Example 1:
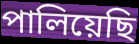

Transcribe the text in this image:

পালিয়েছি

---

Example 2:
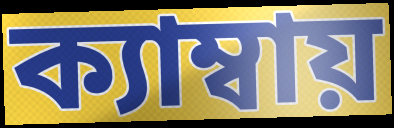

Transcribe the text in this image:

ক্যাম্বায়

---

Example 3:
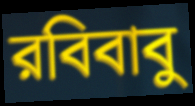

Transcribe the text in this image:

রবিবাবু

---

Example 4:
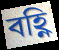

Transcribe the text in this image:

বহ্ণি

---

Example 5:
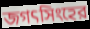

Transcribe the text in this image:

জগৎসিংহের